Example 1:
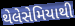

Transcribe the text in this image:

થેલેસેમિયાથી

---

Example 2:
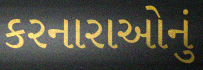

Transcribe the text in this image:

કરનારાઓનું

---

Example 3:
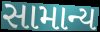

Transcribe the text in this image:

સામાન્ય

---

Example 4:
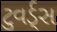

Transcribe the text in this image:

ટુવર્ડ્સ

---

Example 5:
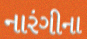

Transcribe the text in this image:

નારંગીના